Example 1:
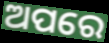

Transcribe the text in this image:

ଅପରେ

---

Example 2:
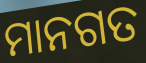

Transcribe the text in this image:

ମାନଗତ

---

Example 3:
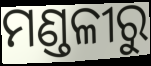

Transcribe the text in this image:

ମଣ୍ଡଳୀରୁ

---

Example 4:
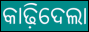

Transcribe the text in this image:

କାଢ଼ିଦେଲା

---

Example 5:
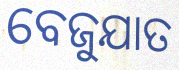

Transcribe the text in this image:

ବେଜୁଯାତ